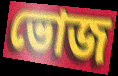
ভোজ